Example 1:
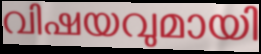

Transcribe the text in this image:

വിഷയവുമായി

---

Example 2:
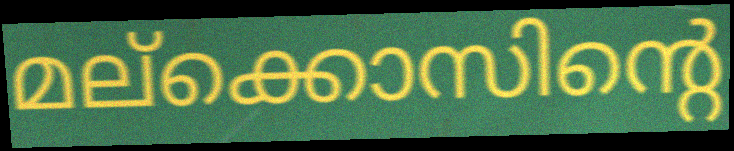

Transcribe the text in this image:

മല്ക്കൊസിന്റെ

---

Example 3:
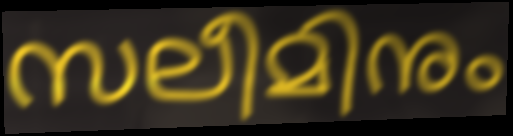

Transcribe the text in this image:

സലീമിനും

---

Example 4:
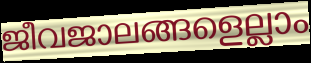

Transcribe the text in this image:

ജീവജാലങ്ങളെല്ലാം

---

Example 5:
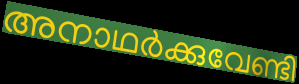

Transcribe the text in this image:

അനാഥർക്കുവേണ്ടി